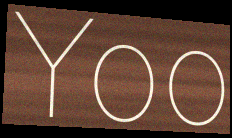
Yoo